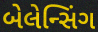
બેલેન્સિંગ